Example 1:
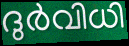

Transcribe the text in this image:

ദുർവിധി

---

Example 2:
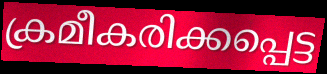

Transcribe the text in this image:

ക്രമീകരിക്കപ്പെട്ട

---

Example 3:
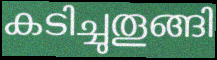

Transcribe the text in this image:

കടിച്ചുതൂങ്ങി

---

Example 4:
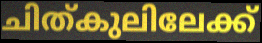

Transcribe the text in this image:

ചിത്കുലിലേക്ക്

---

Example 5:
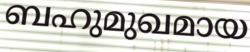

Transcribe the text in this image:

ബഹുമുഖമായ